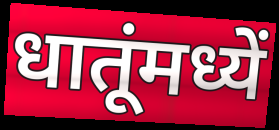
धातूंमध्यें